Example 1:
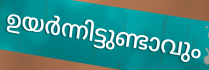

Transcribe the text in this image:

ഉയർന്നിട്ടുണ്ടാവും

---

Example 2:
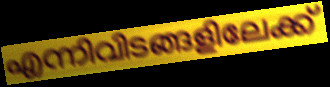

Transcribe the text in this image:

എന്നിവിടങ്ങളിലേക്ക്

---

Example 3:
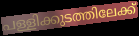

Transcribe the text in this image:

പള്ളിക്കുടത്തിലേക്ക്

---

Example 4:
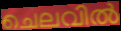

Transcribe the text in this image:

ചെലവിൽ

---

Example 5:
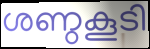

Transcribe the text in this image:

ശണ്ഠകൂടി